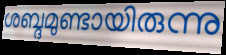
ശബ്ദമുണ്ടായിരുന്നു